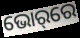
ଭୋର୍‌ରେ